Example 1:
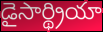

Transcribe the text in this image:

డైసార్థ్రియా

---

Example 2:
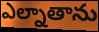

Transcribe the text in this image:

ఎల్నాతాను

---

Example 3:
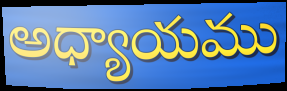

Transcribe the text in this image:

అధ్యాయము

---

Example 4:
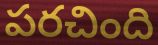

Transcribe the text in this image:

పరచింది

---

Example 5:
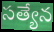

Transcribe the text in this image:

సత్యేన